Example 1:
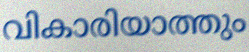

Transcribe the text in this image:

വികാരിയാത്തും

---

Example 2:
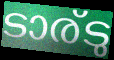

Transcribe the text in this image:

ടാര്ടു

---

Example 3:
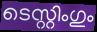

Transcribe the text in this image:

ടെസ്റ്റിംഗും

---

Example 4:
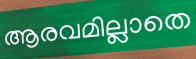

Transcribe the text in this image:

ആരവമില്ലാതെ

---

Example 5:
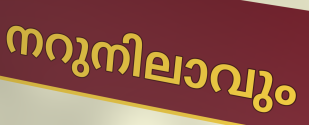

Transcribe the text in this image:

നറുനിലാവും